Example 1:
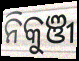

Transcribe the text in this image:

ନିକୁଞ୍ଜ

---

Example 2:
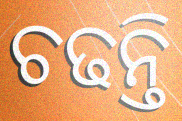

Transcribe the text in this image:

ଚଢନ୍ତି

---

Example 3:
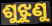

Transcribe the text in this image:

ଶୁଝୁଣୁ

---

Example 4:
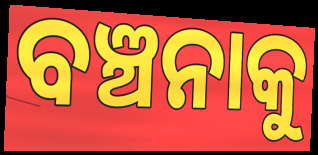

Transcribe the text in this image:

ବଞ୍ଚନାକୁ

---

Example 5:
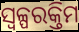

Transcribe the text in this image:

ସ୍ୱଳ୍ପରକ୍ତିମ